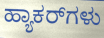
ಹ್ಯಾಕರ್‌ಗಳು